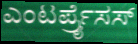
ಎಂಟರ್ಪ್ರೈಸಸ್